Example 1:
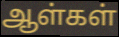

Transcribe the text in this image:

ஆள்கள்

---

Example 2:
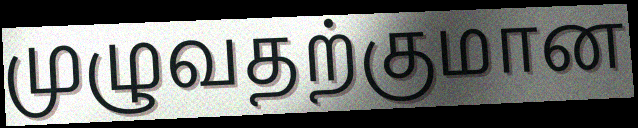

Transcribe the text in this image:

முழுவதற்குமான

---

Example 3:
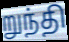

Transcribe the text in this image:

றுந்தி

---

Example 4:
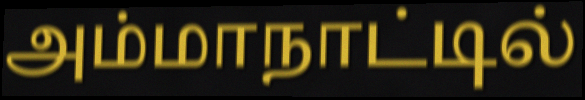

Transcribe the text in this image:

அம்மாநாட்டில்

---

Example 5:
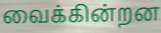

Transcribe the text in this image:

வைக்கின்றன